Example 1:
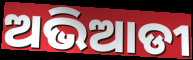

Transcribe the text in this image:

ଅଭିଆଡୀ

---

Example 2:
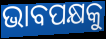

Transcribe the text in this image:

ଭାବପକ୍ଷକୁ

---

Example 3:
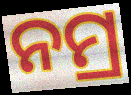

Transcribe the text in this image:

ନମ୍ର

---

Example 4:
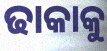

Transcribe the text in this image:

ଢାକାକୁ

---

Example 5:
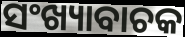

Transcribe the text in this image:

ସଂଖ୍ୟାବାଚକ